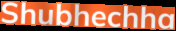
Shubhechha